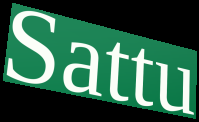
Sattu